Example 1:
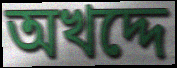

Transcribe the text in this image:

অখদ্দে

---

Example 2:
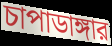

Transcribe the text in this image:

চাপাডাঙ্গার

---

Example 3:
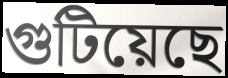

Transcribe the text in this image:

গুটিয়েছে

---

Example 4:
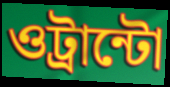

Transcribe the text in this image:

ওট্রান্টো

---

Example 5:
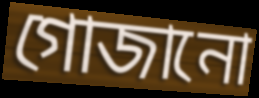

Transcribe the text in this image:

গোজানো